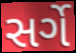
સર્ગે